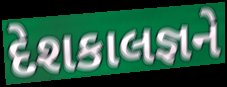
દેશકાલજ્ઞને